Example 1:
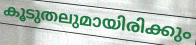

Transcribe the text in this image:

കൂടുതലുമായിരിക്കും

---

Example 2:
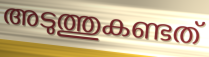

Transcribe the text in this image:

അടുത്തുകണ്ടത്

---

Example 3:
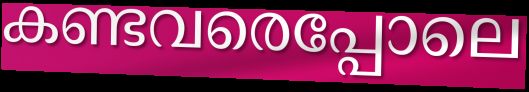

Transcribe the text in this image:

കണ്ടവരെപ്പോലെ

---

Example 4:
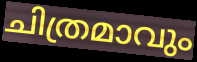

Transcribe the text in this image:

ചിത്രമാവും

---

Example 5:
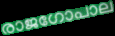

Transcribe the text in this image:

രാജഗോപാല